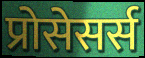
प्रोसेसर्स